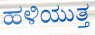
ಹಳಿಯುತ್ತ